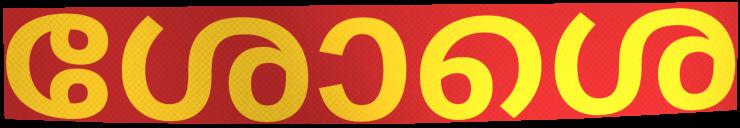
ശോശെ